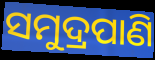
ସମୁଦ୍ରପାଣି